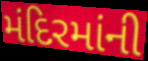
મંદિરમાંની